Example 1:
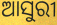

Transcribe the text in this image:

ଆସୁରୀ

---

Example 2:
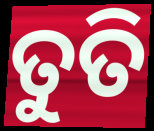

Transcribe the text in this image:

ତୁତି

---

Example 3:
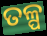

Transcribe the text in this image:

ତଳ୍ପ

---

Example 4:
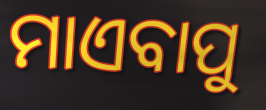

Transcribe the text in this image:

ମାଏବାପୁ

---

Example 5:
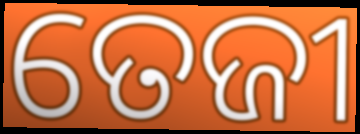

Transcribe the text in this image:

ତେଜୀ